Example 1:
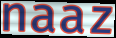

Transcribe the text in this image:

naaz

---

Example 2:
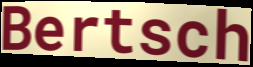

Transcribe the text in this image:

Bertsch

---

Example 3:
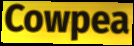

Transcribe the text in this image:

Cowpea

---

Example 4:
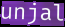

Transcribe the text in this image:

unjal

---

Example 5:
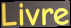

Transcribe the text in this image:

Livre